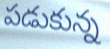
పడుకున్న